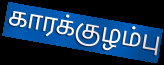
காரக்குழம்பு